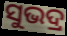
ସୁଭଦ୍ର